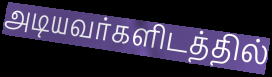
அடியவர்களிடத்தில்